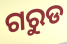
ଗରୁଡ